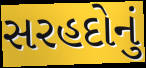
સરહદોનું